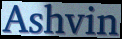
Ashvin